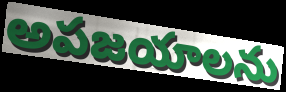
అపజయాలను